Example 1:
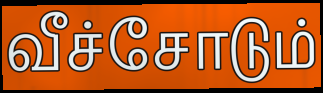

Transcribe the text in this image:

வீச்சோடும்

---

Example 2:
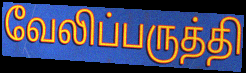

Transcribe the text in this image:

வேலிப்பருத்தி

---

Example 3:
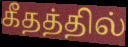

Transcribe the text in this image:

கீதத்தில்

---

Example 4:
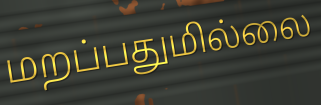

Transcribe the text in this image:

மறப்பதுமில்லை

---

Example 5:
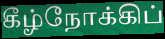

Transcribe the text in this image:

கீழ்நோக்கிப்